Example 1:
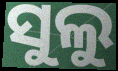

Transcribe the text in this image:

ସୁଲୁ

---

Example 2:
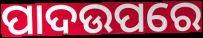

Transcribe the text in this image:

ପାଦଉପରେ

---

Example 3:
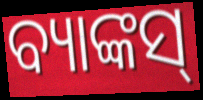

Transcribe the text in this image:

ବ୍ୟାଙ୍କସ୍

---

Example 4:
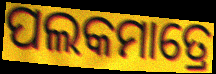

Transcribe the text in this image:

ପଲକମାତ୍ରେ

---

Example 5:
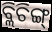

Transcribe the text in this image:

ବ୍ଲିଚିଙ୍ଗ୍